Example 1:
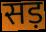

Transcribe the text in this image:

सड़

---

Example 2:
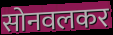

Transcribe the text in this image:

सोनवलकर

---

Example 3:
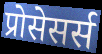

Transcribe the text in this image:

प्रोसेसर्स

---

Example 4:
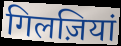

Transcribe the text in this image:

गिलज़ियां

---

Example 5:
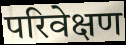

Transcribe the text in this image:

परिवेक्षण